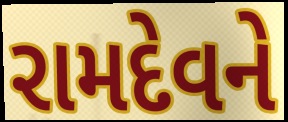
રામદેવને